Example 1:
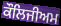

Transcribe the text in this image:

ਕੌਲਿਜੀਅਮ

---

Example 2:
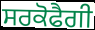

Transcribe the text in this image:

ਸਰਕੋਫੈਗੀ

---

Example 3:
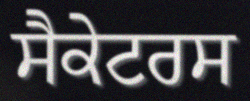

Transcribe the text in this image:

ਸੈਕੇਟਰਸ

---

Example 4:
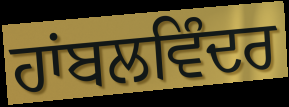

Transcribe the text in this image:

ਹਾਂਬਲਵਿੰਦਰ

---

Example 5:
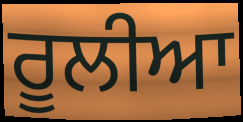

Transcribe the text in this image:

ਰੂਲੀਆ